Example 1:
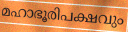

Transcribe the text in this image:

മഹാഭൂരിപക്ഷവും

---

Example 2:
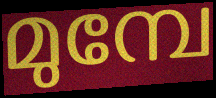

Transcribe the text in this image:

മുമ്പേ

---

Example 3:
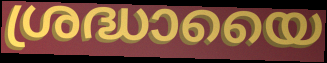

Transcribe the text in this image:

ശ്രദ്ധായൈ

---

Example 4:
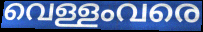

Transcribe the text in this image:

വെള്ളംവരെ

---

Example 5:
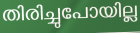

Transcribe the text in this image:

തിരിച്ചുപോയില്ല